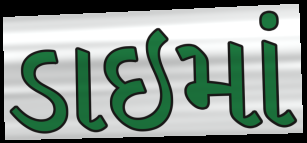
ડાઇમાં